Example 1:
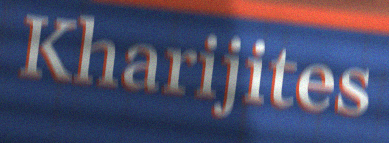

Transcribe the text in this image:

Kharijites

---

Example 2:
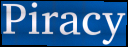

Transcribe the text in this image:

Piracy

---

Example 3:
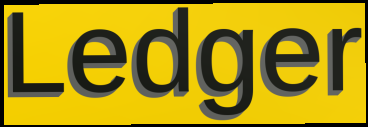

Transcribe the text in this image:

Ledger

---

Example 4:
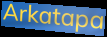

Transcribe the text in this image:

Arkatapa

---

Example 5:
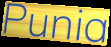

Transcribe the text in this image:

Punia